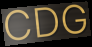
CDG